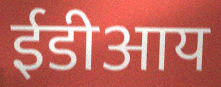
ईडीआय